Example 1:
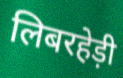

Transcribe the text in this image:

लिबरहेड़ी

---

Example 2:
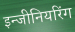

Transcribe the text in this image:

इन्जीनियरिंग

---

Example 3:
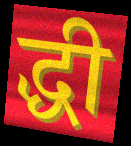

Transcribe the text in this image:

द्धी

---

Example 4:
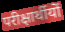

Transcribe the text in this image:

परीक्षार्थीयों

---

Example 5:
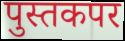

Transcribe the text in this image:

पुस्तकपर